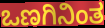
ಒಣಗಿನಿಂತ